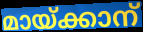
മായ്ക്കാന്